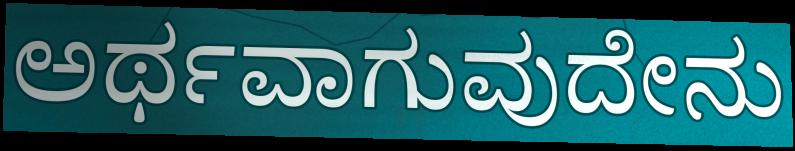
ಅರ್ಥವಾಗುವುದೇನು